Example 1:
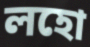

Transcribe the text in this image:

লহো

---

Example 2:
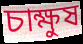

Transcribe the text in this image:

চাক্ষুষ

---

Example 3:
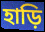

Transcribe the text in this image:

হাড়ি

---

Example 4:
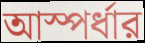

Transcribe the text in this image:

আস্পর্ধার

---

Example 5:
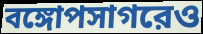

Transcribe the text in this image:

বঙ্গোপসাগরেও